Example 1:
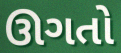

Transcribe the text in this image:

ઊગતો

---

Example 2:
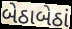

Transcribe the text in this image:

બેઠાબેઠાં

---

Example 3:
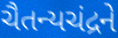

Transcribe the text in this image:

ચૈતન્યચંદ્રને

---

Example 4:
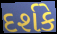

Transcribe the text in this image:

દર્શકે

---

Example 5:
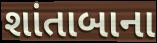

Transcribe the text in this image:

શાંતાબાના